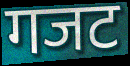
गजट